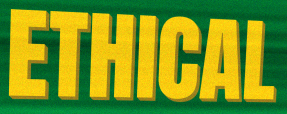
ETHICAL